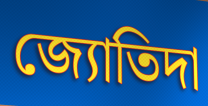
জ্যোতিদা